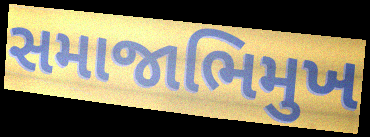
સમાજાભિમુખ